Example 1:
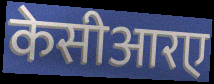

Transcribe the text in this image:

केसीआरए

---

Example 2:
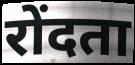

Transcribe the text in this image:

रोंदता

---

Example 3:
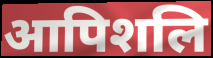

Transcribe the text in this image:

आपिशलि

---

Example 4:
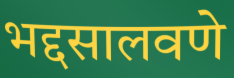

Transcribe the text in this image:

भद्दसालवणे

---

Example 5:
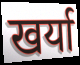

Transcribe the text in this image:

खर्या